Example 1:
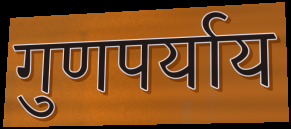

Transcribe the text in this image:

गुणपर्याय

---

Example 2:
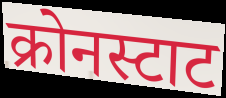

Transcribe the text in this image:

क्रोनस्टाट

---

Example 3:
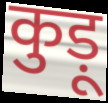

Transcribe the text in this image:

कुड़ू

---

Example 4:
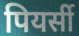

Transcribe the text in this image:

पियर्सी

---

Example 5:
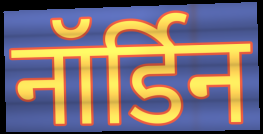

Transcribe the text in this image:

नॉर्डिन